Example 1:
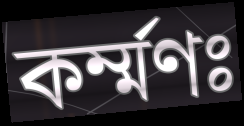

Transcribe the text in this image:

কর্ম্মণঃ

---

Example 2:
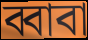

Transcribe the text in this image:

ব্বাবা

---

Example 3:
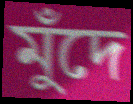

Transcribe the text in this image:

মুঁদে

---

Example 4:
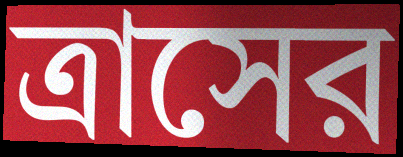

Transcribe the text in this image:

ত্রাসের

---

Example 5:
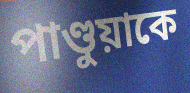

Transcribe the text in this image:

পাণ্ডুয়াকে